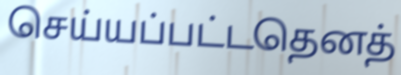
செய்யப்பட்டதெனத்